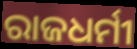
ରାଜଧର୍ମୀ